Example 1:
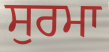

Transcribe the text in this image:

ਸੁਰਮਾ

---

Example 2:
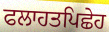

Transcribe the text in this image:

ਫਲਾਹਤਪਿਛੇਹ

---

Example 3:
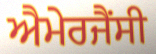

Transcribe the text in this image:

ਐਮੇਰਜੈਂਸੀ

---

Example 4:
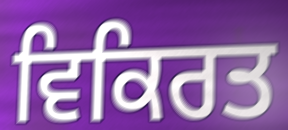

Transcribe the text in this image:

ਵਿਕਿਰਤ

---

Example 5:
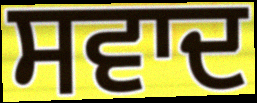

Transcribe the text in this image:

ਸਵਾਦ